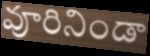
వూరినిండా